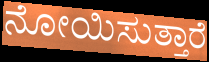
ನೋಯಿಸುತ್ತಾರೆ